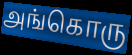
அங்கொரு